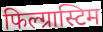
फिल्ग्रास्टिम